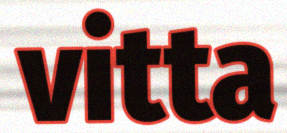
vitta